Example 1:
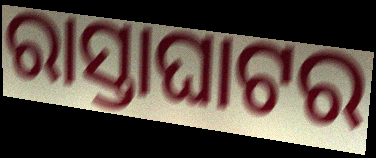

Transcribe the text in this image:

ରାସ୍ତାଘାଟର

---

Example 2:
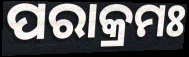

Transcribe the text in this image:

ପରାକ୍ରମଃ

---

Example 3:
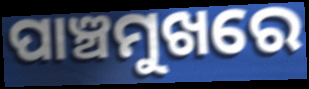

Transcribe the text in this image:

ପାଞ୍ଚମୁଖରେ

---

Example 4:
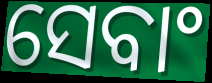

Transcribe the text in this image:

ସେବାଂ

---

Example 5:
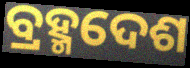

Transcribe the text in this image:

ବ୍ରହ୍ମଦେଶ